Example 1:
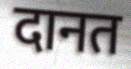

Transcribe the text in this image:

दानत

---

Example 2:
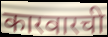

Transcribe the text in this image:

कारवारची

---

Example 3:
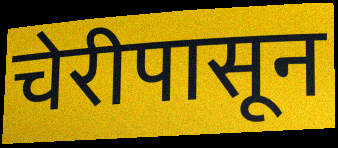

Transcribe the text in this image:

चेरीपासून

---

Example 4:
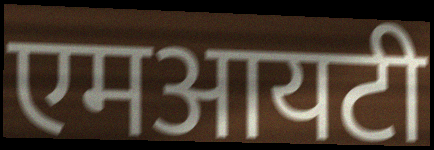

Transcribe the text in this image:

एमआयटी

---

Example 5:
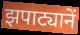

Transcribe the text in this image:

झपाट्यानें